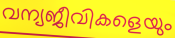
വന്യജീവികളെയും